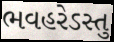
ભવહરેઽસ્તુ